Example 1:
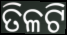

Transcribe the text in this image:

ତିଳଟି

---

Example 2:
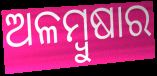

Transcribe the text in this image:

ଅଳମ୍ବୁଷାର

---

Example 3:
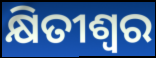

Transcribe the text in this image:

କ୍ଷିତୀଶ୍ୱର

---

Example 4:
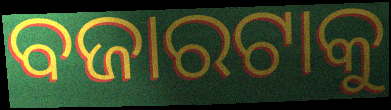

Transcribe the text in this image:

ବଜାରଟାକୁ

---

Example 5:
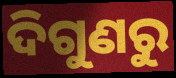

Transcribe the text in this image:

ଦିଗୁଣରୁ